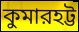
কুমারহট্ট